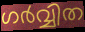
ഗർവ്വിത